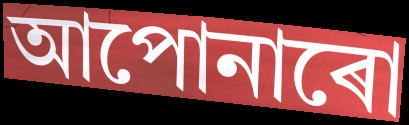
আপোনাৰো